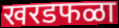
खरडफळा